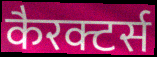
कैरक्टर्स